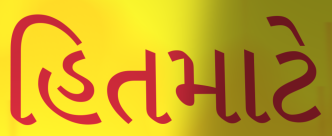
હિતમાટે